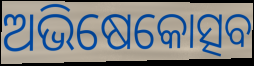
ଅଭିଷେକୋତ୍ସବ